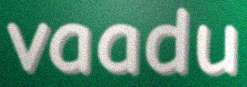
vaadu